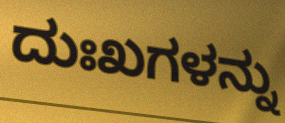
ದುಃಖಗಳನ್ನು